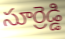
సూర్రెడ్డి